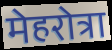
मेहरोत्रा